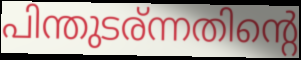
പിന്തുടര്ന്നതിന്റെ